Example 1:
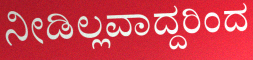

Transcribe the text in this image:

ನೀಡಿಲ್ಲವಾದ್ದರಿಂದ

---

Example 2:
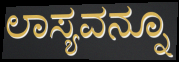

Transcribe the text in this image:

ಲಾಸ್ಯವನ್ನೂ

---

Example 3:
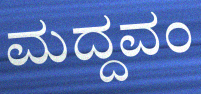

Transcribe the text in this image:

ಮದ್ದವಂ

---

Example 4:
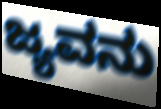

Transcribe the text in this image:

ಜ್ಯವನು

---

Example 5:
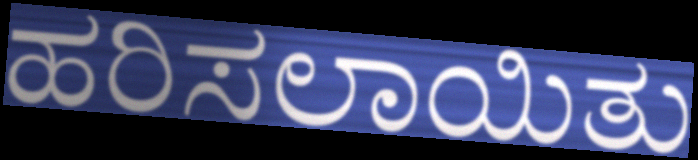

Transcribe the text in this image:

ಹರಿಸಲಾಯಿತು